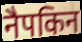
नैपकिन